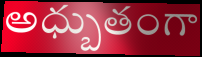
అధ్బుతంగా